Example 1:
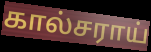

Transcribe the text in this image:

கால்சராய்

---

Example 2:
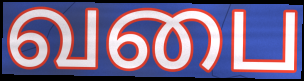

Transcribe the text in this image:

வபை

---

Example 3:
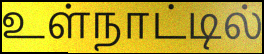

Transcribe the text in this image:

உள்நாட்டில்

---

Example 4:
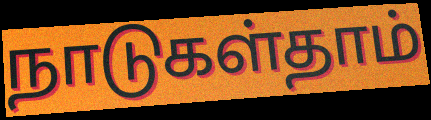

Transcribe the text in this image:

நாடுகள்தாம்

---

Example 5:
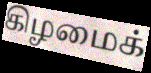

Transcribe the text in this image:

கிழமைக்